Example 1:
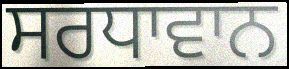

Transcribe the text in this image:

ਸਰਧਾਵਾਨ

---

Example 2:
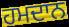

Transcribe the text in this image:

ਹਮਦਾਨ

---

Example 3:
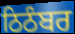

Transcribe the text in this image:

ਠਿਠੰਬਰ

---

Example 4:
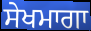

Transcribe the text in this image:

ਸੇਖਮਾਗਾ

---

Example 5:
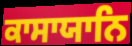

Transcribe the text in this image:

ਕਾਸਾਯਾਨਿ